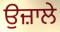
ਉਜ਼ਾਲੇ